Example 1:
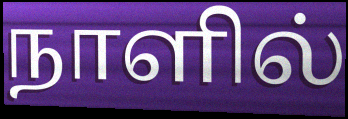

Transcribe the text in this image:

நாளில்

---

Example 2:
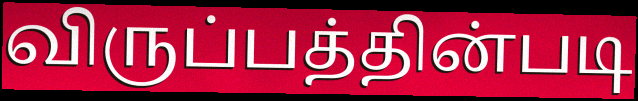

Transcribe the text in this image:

விருப்பத்தின்படி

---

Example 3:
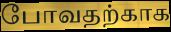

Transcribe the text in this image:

போவதற்காக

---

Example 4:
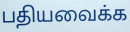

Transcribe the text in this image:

பதியவைக்க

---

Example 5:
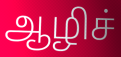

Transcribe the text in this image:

ஆழிச்